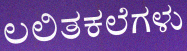
ಲಲಿತಕಲೆಗಳು